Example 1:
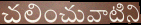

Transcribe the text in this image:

చలించువాటిని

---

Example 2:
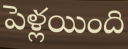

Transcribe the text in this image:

పెళ్లయింది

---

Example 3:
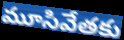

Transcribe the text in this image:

మూసివేతకు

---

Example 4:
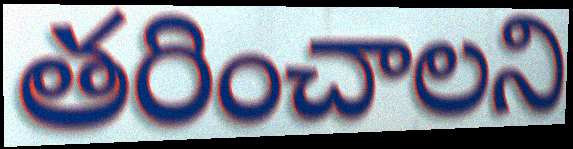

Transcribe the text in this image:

తరించాలని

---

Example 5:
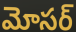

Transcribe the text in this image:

మోసర్